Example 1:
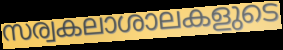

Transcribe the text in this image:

സര്വകലാശാലകളുടെ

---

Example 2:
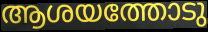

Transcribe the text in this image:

ആശയത്തോടു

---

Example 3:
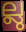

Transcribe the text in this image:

ല്ലു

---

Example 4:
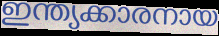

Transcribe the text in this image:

ഇന്ത്യക്കാരനായ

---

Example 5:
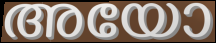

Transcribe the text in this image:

അയോ